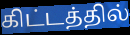
கிட்டத்தில்